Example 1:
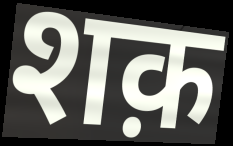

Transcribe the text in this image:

शक़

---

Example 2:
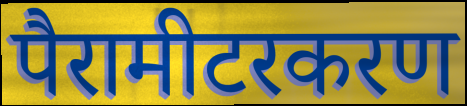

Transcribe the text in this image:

पैरामीटरकरण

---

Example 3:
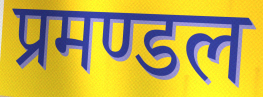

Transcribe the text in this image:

प्रमण्डल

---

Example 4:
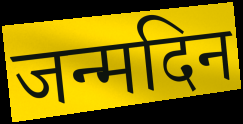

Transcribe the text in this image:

जन्मदिन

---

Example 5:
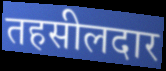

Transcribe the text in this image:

तहसीलदार